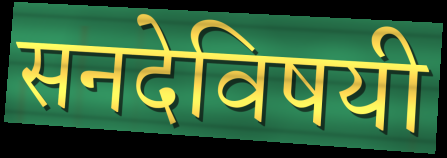
सनदेविषयी